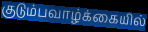
குடும்பவாழ்க்கையில்